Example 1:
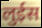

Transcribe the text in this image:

लुईस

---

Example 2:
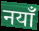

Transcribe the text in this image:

नयाँ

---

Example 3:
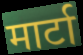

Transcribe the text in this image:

मार्टा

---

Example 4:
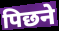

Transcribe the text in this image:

पिछने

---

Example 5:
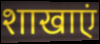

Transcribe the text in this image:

शाखाएं